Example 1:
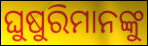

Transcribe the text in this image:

ଘୁଷୁରିମାନଙ୍କୁ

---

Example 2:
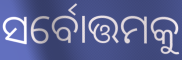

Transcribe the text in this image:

ସର୍ବୋତ୍ତମକୁ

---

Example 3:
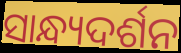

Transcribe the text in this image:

ସାନ୍ଧ୍ୟଦର୍ଶନ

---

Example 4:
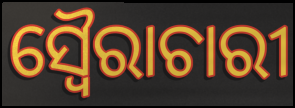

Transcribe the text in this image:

ସ୍ୱୈରାଚାରୀ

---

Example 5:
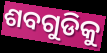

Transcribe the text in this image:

ଶବଗୁଡିକୁ